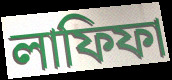
লাফিফা